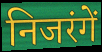
निजरंगें